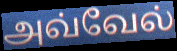
அவ்வேல்